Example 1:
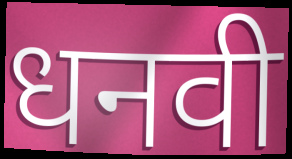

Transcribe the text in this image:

धनवी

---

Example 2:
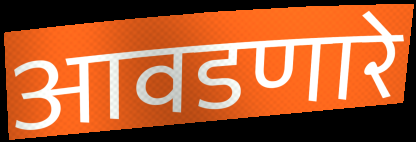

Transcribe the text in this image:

आवडणारे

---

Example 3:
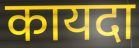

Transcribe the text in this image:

कायदा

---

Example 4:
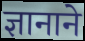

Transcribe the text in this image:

ज्ञानाने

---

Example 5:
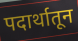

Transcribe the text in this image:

पदार्थातून